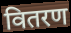
वितरण